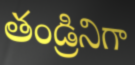
తండ్రినిగా